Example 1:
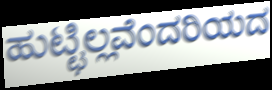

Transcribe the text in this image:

ಹುಟ್ಟಿಲ್ಲವೆಂದರಿಯದ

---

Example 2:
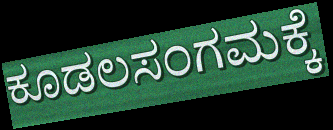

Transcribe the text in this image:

ಕೂಡಲಸಂಗಮಕ್ಕೆ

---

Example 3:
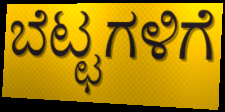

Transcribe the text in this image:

ಬೆಟ್ಟಗಳಿಗೆ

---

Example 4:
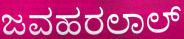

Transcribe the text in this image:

ಜವಹರಲಾಲ್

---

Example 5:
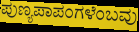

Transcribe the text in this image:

ಪುಣ್ಯಪಾಪಂಗಳೆಂಬವು